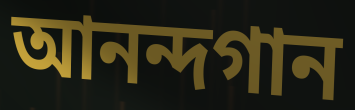
আনন্দগান